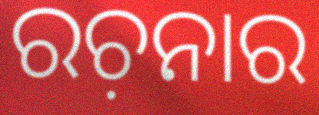
ରଚ଼ନାର